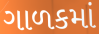
ગાળકમાં